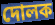
দোলক